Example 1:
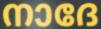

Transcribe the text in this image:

നാദേ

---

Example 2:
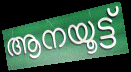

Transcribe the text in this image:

ആനയൂട്ട്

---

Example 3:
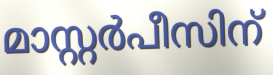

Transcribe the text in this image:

മാസ്റ്റർപീസിന്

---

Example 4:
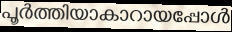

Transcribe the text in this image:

പൂർത്തിയാകാറായപ്പോൾ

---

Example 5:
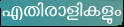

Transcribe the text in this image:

എതിരാളികളും